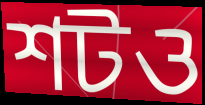
শটও